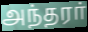
அந்தரர்